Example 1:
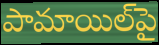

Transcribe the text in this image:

పామాయిల్‌పై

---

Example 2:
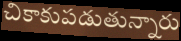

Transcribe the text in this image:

చికాకుపడుతున్నారు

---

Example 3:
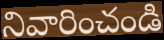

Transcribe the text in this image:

నివారించండి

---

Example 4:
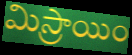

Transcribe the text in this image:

మిస్రాయిం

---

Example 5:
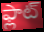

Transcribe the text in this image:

ఫ్లాట్